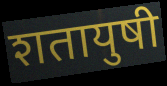
शतायुषी